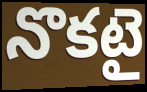
నొకటై